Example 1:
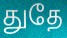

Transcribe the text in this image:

துதே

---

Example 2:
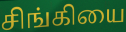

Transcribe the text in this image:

சிங்கியை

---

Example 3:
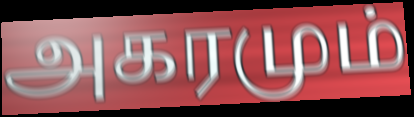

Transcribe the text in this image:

அகரமும்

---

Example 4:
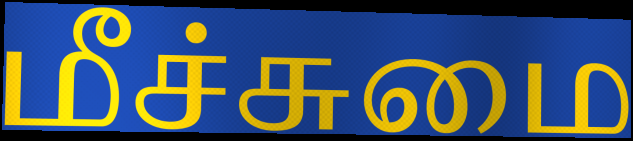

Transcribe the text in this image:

மீச்சுமை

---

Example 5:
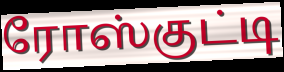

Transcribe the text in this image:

ரோஸ்குட்டி